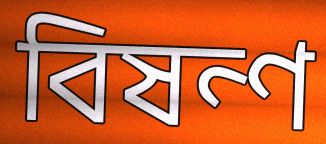
বিষন্ণ